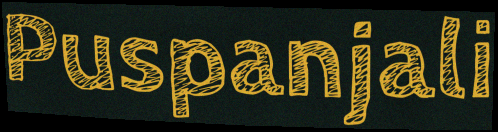
Puspanjali